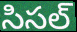
సిసల్